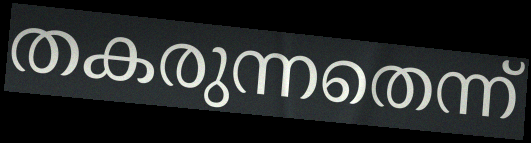
തകരുന്നതെന്ന്